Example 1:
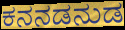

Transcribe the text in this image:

ಕನನಡನುಡ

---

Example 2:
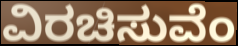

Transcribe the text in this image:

ವಿರಚಿಸುವೆಂ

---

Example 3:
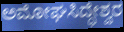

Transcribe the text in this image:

ಅಮೋಘಸಿದ್ಧೇಶ್ವರ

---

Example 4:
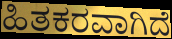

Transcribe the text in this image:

ಹಿತಕರವಾಗಿದೆ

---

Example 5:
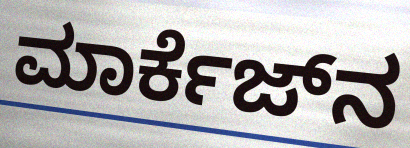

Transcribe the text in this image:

ಮಾರ್ಕೆಜ್‌ನ